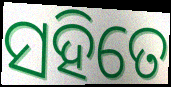
ସହିତେ